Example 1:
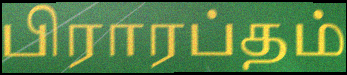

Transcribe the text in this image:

பிராரப்தம்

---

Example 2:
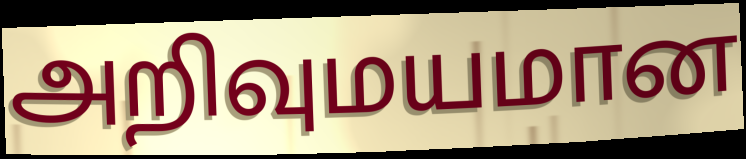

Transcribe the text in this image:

அறிவுமயமான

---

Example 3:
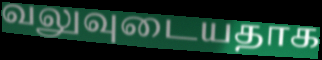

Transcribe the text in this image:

வலுவுடையதாக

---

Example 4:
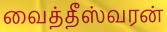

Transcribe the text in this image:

வைத்தீஸ்வரன்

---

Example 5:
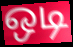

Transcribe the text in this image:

ஒடி